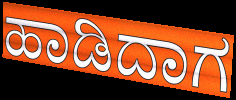
ಹಾಡಿದಾಗ